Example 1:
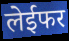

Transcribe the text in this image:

लेईफर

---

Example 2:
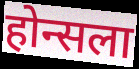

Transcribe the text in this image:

होन्सला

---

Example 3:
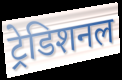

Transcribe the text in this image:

ट्रेडिशनल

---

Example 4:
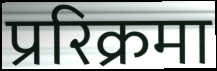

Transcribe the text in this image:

प्ररिक्रमा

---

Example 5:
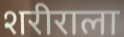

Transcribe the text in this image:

शरीराला